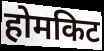
होमकिट